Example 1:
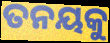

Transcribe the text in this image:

ତନୟକୁ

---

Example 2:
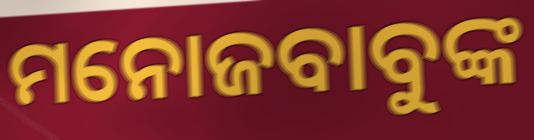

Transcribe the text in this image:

ମନୋଜବାବୁଙ୍କ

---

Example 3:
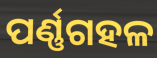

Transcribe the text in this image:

ପର୍ଣ୍ଣଗହଳ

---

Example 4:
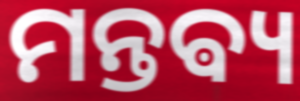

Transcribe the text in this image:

ମନ୍ତଵ୍ୟ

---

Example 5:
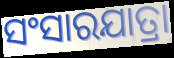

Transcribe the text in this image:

ସଂସାରଯାତ୍ରା